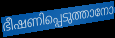
ഭീഷണിപ്പെടുത്താനോ